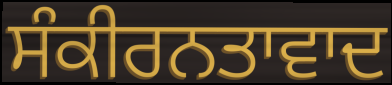
ਸੰਕੀਰਨਤਾਵਾਦ